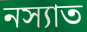
নস্যাত